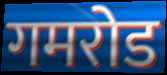
गमरोड